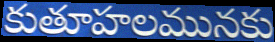
కుతూహలమునకు